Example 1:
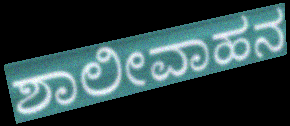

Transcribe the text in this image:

ಶಾಲೀವಾಹನ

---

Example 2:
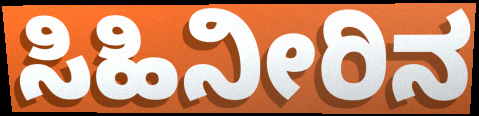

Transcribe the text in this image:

ಸಿಹಿನೀರಿನ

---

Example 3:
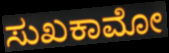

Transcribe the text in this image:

ಸುಖಕಾಮೋ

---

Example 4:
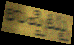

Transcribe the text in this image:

ಉಪ್ಪಿಟ್ಟು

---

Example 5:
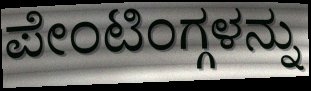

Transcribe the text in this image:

ಪೇಂಟಿಂಗ್ಗಳನ್ನು